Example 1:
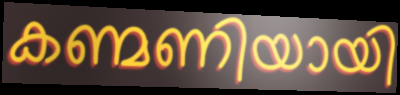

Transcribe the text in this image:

കണ്മണിയായി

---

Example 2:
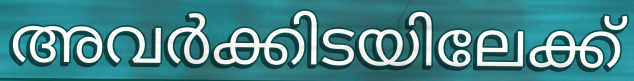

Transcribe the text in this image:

അവർക്കിടയിലേക്ക്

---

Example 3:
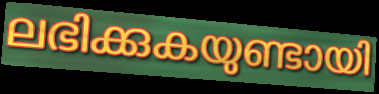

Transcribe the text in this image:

ലഭിക്കുകയുണ്ടായി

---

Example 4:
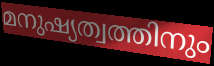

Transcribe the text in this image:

മനുഷ്യത്വത്തിനും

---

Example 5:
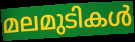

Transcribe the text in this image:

മലമുടികൾ